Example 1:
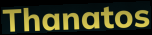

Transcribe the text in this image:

Thanatos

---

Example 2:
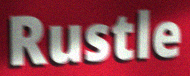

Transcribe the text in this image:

Rustle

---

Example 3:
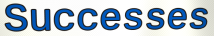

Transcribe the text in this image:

Successes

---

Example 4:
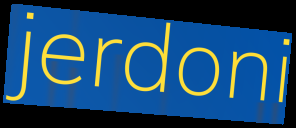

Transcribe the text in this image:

jerdoni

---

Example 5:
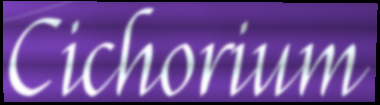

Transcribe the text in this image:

Cichorium